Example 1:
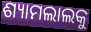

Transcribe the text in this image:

ଶ୍ୟାମଲାଲକୁ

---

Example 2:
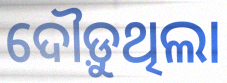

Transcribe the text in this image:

ଦୌଡ଼ୁଥିଲା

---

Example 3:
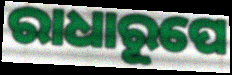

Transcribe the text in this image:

ରାଧାରୂପେ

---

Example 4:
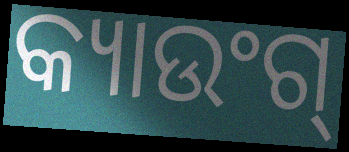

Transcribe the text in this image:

କ୍ୟାଉଂଗ୍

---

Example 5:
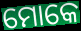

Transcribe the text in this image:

ମୋକେ